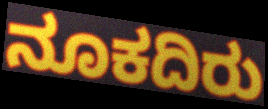
ನೂಕದಿರು